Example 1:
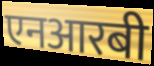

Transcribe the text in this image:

एनआरबी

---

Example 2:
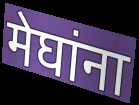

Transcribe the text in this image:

मेघांना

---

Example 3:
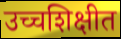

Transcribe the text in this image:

उच्चशिक्षीत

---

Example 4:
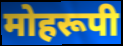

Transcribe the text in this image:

मोहरूपी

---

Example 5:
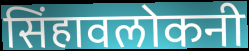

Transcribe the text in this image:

सिंहावलोकनी